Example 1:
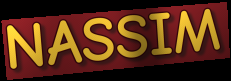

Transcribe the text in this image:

NASSIM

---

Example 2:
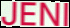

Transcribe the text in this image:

JENI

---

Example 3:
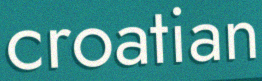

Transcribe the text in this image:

croatian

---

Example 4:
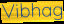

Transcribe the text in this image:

Vibhag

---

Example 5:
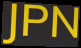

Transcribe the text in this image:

JPN